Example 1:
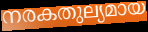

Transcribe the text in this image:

നരകതുല്യമായ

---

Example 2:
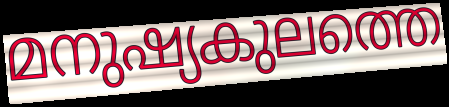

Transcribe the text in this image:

മനുഷ്യകുലത്തെ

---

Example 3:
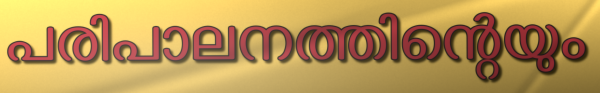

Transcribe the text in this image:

പരിപാലനത്തിന്റെയും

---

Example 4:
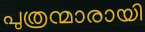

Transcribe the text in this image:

പുത്രന്മാരായി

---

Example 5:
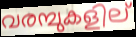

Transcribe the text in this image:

വരമ്പുകളില്